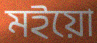
মইয়ো